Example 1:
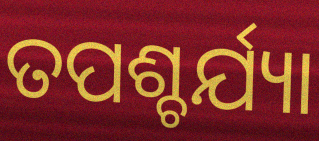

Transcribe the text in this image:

ତପଶ୍ଚର୍ଯ୍ୟା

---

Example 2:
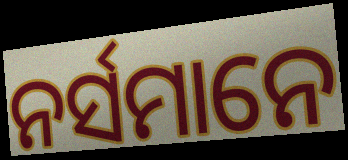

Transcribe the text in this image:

ନର୍ସମାନେ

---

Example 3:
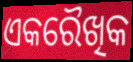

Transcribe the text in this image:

ଏକରୈଖିକ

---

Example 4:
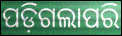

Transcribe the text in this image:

ପଡ଼ିଗଲାପରି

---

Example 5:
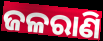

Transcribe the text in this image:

ଜଳରାଣି